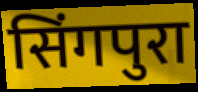
सिंगपुरा